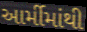
આર્મીમાંથી